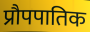
प्रौपपातिक